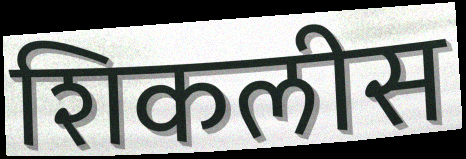
शिकलीस